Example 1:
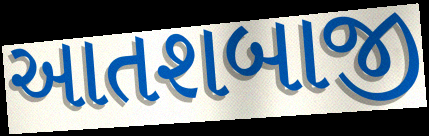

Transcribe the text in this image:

આતશબાજી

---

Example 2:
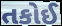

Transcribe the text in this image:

તકોઈ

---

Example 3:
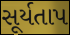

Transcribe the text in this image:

સૂર્યતાપ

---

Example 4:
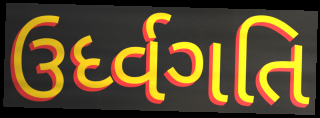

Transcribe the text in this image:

ઉર્ધ્વગતિ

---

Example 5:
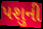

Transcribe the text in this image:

પશુની